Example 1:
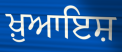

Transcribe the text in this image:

ਖ਼ੁਆਇਸ਼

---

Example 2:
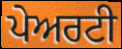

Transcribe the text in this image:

ਪੇਅਰਟੀ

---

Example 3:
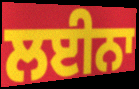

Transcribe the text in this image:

ਲਈਨਾ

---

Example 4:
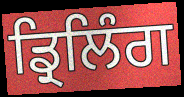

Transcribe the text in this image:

ਡ੍ਰਿਲਿੰਗ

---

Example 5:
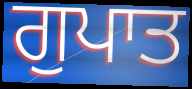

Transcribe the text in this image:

ਗੁਪਾਤ